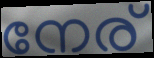
നേര്